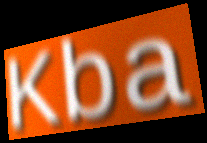
Kba